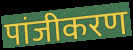
पांजीकरण